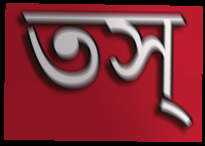
তস্